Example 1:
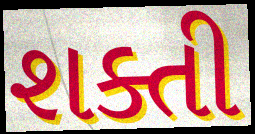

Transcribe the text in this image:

શક્તી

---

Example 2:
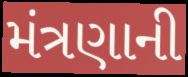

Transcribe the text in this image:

મંત્રણાની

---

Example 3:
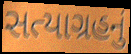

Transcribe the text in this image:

સત્યાગ્રહનું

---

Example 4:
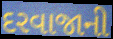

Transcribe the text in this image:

દરવાજાની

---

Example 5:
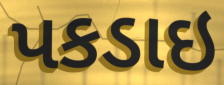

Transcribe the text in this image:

પકડાઇ